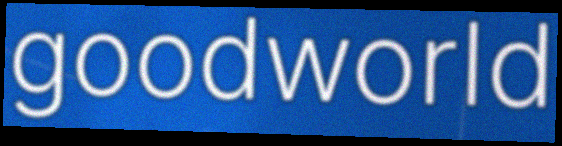
goodworld